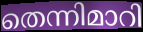
തെന്നിമാറി